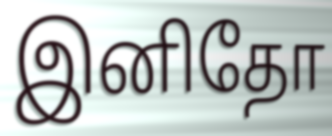
இனிதோ